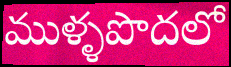
ముళ్ళపొదలో